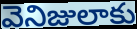
వెనిజులాకు